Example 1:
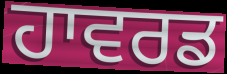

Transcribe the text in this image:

ਹਾਵਰਡ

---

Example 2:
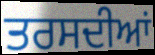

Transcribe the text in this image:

ਤਰਸਦੀਆਂ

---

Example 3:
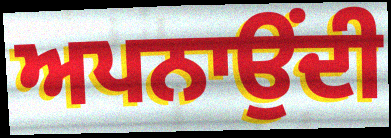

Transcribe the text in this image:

ਅਪਨਾਉਂਦੀ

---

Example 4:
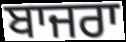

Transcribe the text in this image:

ਬਾਜਰਾ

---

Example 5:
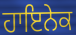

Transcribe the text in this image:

ਹਾਇਨੇਕ